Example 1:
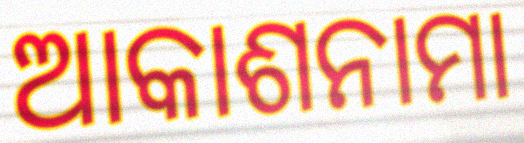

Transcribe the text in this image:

ଆକାଶନାମା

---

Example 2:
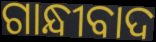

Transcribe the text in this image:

ଗାନ୍ଧୀବାଦ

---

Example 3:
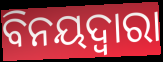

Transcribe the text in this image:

ବିନୟଦ୍ବାରା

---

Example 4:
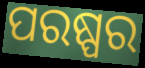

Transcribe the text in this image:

ପରଷ୍ପର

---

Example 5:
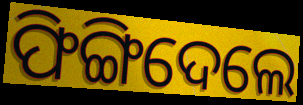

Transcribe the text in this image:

ଫିଙ୍ଗିଦେଲେ